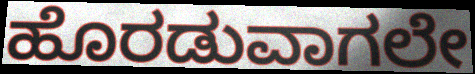
ಹೊರಡುವಾಗಲೇ